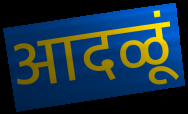
आदळूं